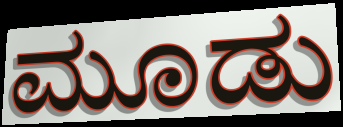
ಮೂಡು